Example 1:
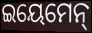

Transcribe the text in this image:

ଇୟେମେନ୍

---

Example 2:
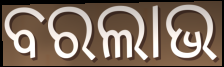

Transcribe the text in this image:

ବରଲାଭ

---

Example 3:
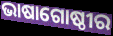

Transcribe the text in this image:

ଭାଷାଗୋଷ୍ଠୀର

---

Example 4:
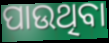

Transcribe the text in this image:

ପାଉଥିବା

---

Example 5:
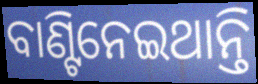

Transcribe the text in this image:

ବାଣ୍ଟିନେଇଥାନ୍ତି